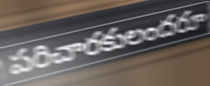
పరిచారకులందరూ